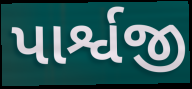
પાર્શ્વજી